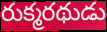
రుక్మరథుడు